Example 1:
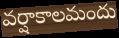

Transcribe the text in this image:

వర్షాకాలమందు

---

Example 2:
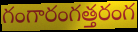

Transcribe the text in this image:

గంగారంగత్తరంగ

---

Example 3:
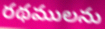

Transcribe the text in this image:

రథములను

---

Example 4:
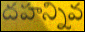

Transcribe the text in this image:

దహన్నివ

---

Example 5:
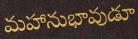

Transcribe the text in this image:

మహానుభావుడూ